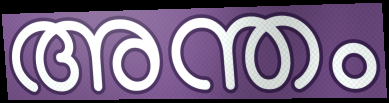
അന്തം